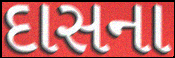
દાસના